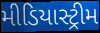
મીડિયાસ્ટ્રીમ